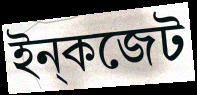
ইন্কজেট